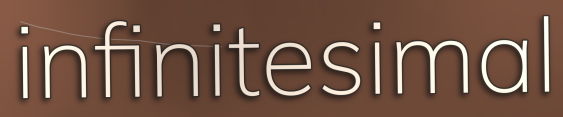
infinitesimal